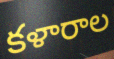
కళారాల